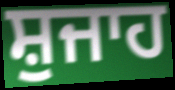
ਸ਼ੁਜਾਹ